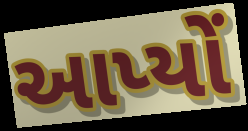
આપ્યોં